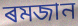
ৰমজান